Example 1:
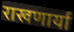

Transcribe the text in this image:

राखणार्या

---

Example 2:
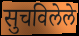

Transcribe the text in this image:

सुचविलेले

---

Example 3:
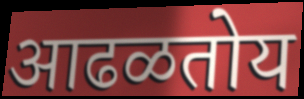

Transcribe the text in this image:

आढळतोय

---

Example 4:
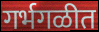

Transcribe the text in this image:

गर्भगळीत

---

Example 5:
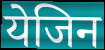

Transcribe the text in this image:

येजिन